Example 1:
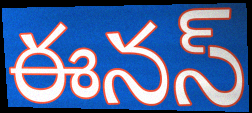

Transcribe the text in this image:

ఈనస్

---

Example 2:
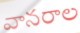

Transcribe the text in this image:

వానరాల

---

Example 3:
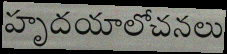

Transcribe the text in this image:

హృదయాలోచనలు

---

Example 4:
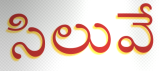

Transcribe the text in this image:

సిలువే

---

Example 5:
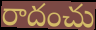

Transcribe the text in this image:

రాదంచు